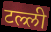
टल्ली